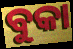
ବୁକା